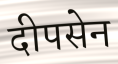
दीपसेन